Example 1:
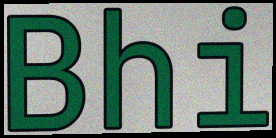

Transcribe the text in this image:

Bhi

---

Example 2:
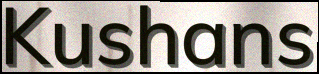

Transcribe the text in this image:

Kushans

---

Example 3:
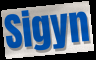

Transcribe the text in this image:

Sigyn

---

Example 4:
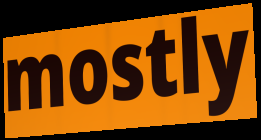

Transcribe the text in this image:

mostly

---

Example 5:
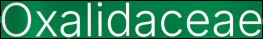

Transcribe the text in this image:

Oxalidaceae